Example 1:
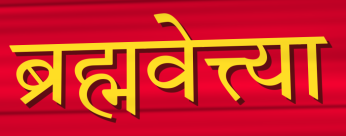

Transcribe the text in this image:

ब्रह्मवेत्त्या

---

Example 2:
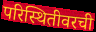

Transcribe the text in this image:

परिस्थितीवरची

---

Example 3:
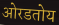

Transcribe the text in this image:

ओरडतोय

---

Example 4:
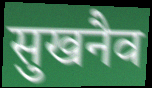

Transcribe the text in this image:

सुखनैव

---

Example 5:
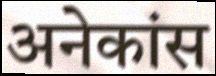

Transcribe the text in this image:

अनेकांस